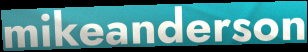
mikeanderson